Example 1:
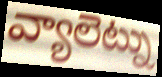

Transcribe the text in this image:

వ్యాలెట్ను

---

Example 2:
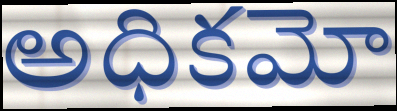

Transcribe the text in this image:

అధికమో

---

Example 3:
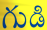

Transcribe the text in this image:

గుడి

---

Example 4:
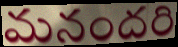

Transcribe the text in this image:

మనందరి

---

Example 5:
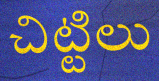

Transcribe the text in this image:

చిట్టిలు